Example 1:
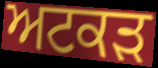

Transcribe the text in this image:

ਅਟਕੜ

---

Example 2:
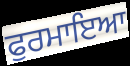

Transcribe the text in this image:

ਫੁਰਮਾਇਆ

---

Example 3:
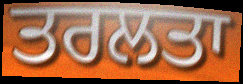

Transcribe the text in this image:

ਤਰਲਤਾ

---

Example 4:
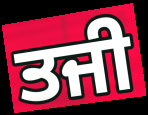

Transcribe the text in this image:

ਤਜੀ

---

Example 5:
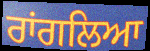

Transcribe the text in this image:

ਰਾਂਗਲਿਆ